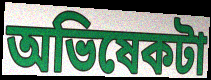
অভিষেকটা